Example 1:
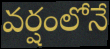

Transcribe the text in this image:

వర్షంలోనే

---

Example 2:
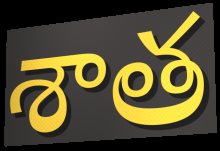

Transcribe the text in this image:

శాత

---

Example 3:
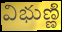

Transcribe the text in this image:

విభుణ్ణి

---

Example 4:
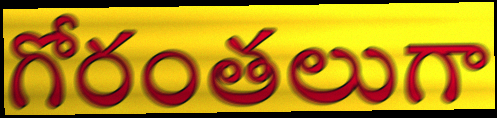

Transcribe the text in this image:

గోరంతలుగా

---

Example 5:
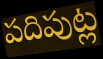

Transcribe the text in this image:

పదిపుట్ల